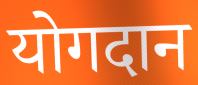
योगदान